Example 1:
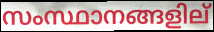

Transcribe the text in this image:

സംസ്ഥാനങ്ങളില്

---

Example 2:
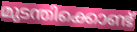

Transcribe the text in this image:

മുടന്തിക്കൊണ്ട്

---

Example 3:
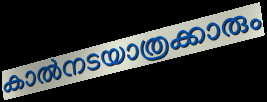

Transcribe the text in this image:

കാൽനടയാത്രക്കാരും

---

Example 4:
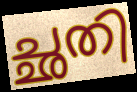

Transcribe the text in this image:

ച്ഛതി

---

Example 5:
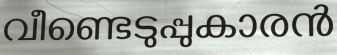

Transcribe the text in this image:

വീണ്ടെടുപ്പുകാരൻ